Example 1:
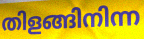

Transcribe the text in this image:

തിളങ്ങിനിന്ന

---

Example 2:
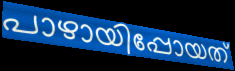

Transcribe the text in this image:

പാഴായിപ്പോയത്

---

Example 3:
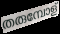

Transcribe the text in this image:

തരുമ്പോള്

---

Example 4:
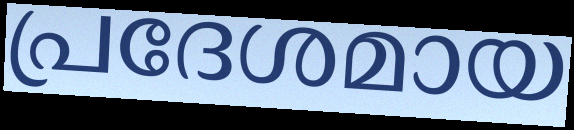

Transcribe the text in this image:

പ്രദേശമായ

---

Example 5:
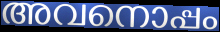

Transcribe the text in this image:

അവനൊപ്പം